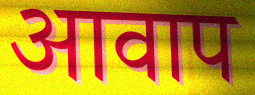
आवाप